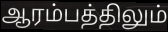
ஆரம்பத்திலும்